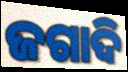
ଜଗାଦି